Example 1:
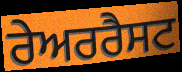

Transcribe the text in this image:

ਰੇਅਰਰੈਸਟ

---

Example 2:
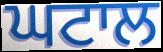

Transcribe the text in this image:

ਘਟਾਲ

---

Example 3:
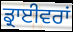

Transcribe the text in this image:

ਡ੍ਰਾਈਵਰਾਂ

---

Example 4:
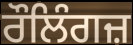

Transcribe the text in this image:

ਰੌਲਿੰਗਜ਼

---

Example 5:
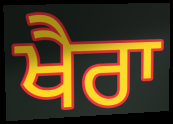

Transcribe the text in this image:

ਖੈਰਾ